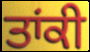
ਤਾਂਕੀ